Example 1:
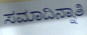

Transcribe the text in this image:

ಸಮಾದಿನ್ನಾತಿ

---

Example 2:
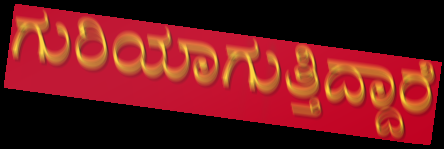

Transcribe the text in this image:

ಗುರಿಯಾಗುತ್ತಿದ್ದಾರೆ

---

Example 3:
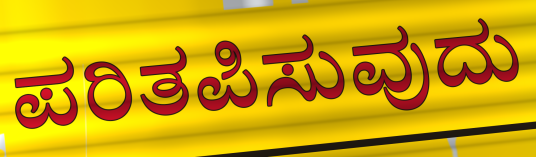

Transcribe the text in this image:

ಪರಿತಪಿಸುವುದು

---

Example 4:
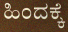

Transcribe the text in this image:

ಹಿಂದಕ್ಕೆ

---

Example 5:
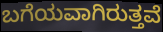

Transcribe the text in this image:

ಬಗೆಯವಾಗಿರುತ್ತವೆ